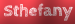
Sthefany